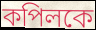
কপিলকে